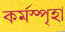
কর্মস্পৃহা